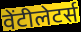
वेंटीलेटर्स